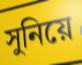
সুনিয়ে